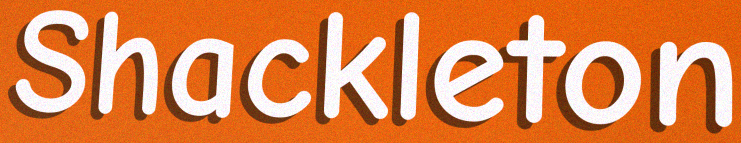
Shackleton